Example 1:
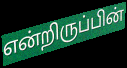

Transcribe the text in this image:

என்றிருப்பின்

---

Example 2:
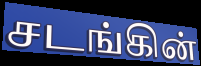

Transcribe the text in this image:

சடங்கின்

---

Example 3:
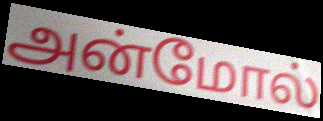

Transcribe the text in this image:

அன்மோல்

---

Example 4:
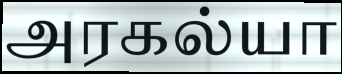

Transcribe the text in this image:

அரகல்யா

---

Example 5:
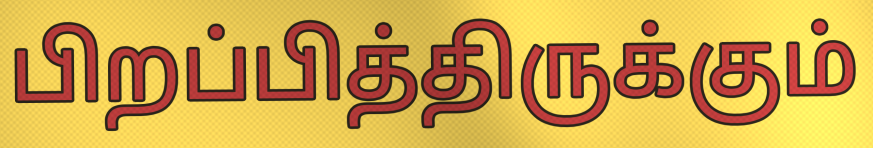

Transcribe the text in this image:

பிறப்பித்திருக்கும்